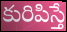
కురిపిస్తే